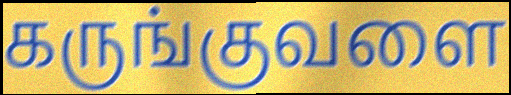
கருங்குவளை